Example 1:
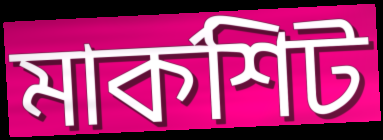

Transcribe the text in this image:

মার্কশিট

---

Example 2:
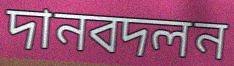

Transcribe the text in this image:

দানবদলন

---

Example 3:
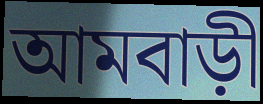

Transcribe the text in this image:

আমবাড়ী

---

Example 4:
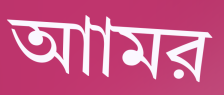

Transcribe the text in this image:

আামর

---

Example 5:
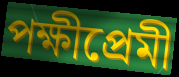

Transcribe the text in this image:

পক্ষীপ্রেমী